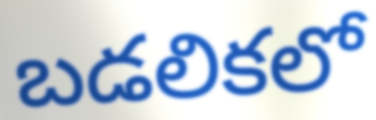
బడలికలో